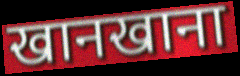
खानखाना